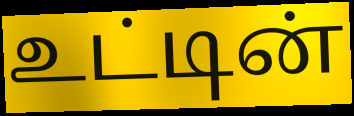
உட்டின்